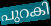
പുറകി